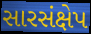
સારસંક્ષેપ